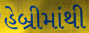
હેબ્રીમાંથી